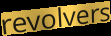
revolvers